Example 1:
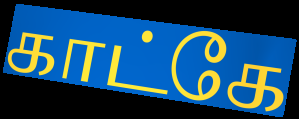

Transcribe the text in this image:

காட்கே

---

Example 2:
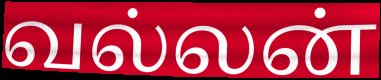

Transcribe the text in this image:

வல்லன்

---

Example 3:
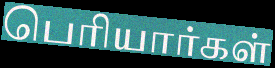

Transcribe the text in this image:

பெரியார்கள்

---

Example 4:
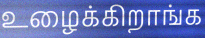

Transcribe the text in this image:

உழைக்கிறாங்க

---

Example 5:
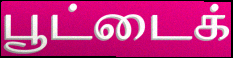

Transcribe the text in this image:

பூட்டைக்